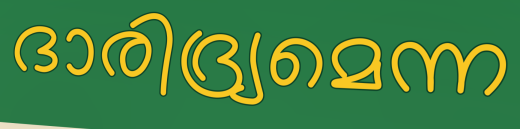
ദാരിദ്ര്യമെന്ന